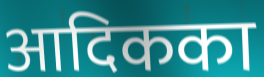
आदिकका